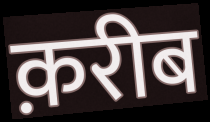
क़रीब